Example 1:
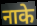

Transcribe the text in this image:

नाके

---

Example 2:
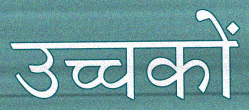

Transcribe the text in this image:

उच्चकों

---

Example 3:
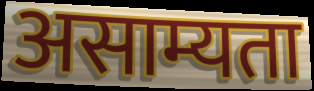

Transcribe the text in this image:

असाम्यता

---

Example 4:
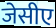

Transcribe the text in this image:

जेसीए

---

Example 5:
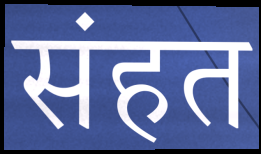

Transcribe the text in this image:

संहत